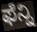
ಫೆನ್ನಿ